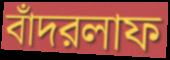
বাঁদরলাফ